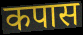
कपास